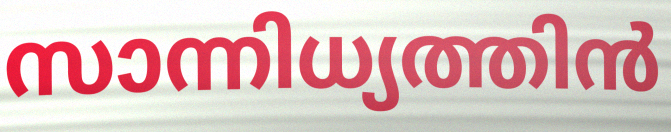
സാന്നിധ്യത്തിൻ